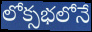
లోక్సభలోనే